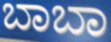
ಬಾಬಾ